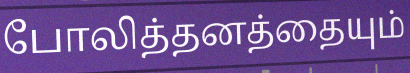
போலித்தனத்தையும்